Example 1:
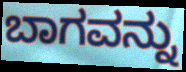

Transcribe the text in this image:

ಬಾಗವನ್ನು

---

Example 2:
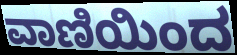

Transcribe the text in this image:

ವಾಣಿಯಿಂದ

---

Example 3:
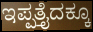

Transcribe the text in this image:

ಇಪ್ಪತ್ತೈದಕ್ಕೂ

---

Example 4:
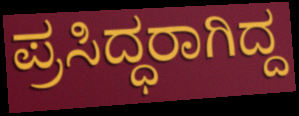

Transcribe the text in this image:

ಪ್ರಸಿದ್ಧರಾಗಿದ್ದ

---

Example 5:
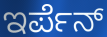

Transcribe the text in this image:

ಇರ್ಪೆನ್